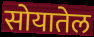
सोयातेल